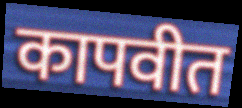
कापवीत